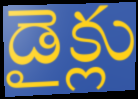
డైక్లు